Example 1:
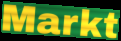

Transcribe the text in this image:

Markt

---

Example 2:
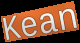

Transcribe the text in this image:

Kean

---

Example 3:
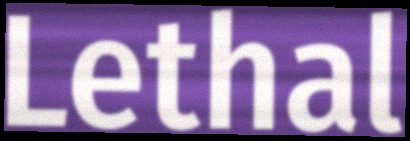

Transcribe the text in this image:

Lethal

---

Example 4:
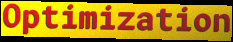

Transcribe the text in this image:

Optimization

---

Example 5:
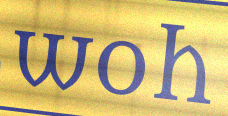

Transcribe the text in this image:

woh